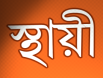
স্থায়ী